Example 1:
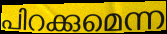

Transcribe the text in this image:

പിറക്കുമെന്ന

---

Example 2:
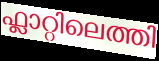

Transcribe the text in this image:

ഫ്ലാറ്റിലെത്തി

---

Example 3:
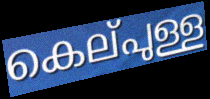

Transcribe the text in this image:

കെല്‌പുള്ള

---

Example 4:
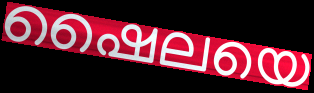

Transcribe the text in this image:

ഷൈലയെ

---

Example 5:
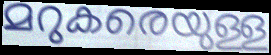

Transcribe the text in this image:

മറുകരെയുള്ള